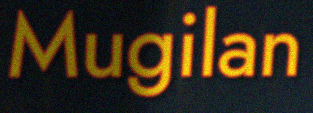
Mugilan